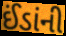
ઈંડાંની